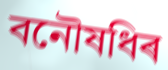
বনৌষধিৰ